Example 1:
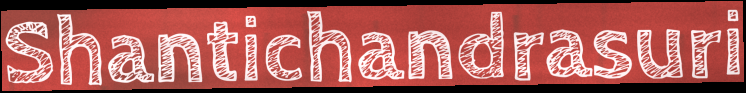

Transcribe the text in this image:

Shantichandrasuri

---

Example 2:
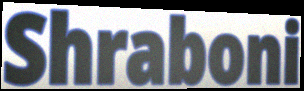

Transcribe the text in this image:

Shraboni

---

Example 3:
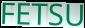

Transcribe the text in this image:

FETSU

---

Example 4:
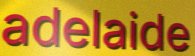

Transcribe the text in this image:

adelaide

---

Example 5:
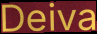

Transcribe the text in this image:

Deiva